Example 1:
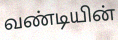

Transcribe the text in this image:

வண்டியின்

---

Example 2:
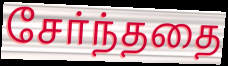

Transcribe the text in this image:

சேர்ந்ததை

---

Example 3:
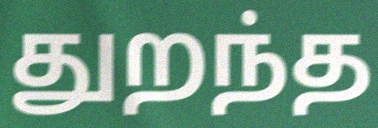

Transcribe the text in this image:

துறந்த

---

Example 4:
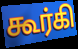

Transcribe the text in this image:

கூர்கி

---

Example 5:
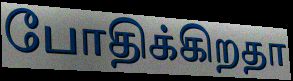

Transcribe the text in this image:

போதிக்கிறதா